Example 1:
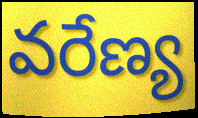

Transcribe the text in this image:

వరేణ్య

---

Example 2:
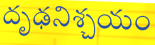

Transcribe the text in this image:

దృఢనిశ్చయం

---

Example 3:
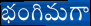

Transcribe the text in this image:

భంగిమగా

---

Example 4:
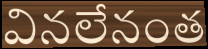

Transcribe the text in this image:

వినలేనంత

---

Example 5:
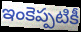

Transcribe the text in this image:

ఇంకెప్పటికీ